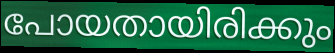
പോയതായിരിക്കും